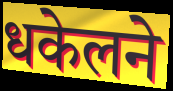
धकेलने